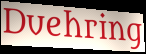
Duehring